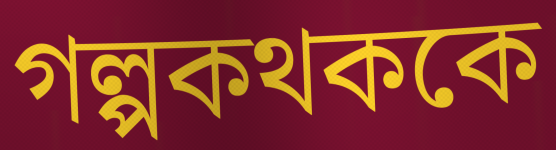
গল্পকথককে